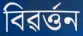
বিৱৰ্ত্তন